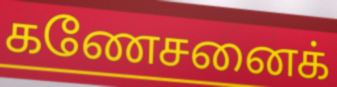
கணேசனைக்